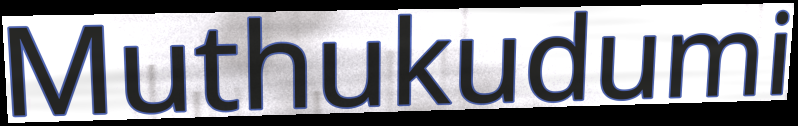
Muthukudumi